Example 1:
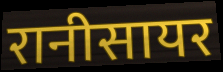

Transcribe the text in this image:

रानीसायर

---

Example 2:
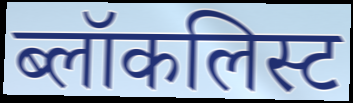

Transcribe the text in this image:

ब्लॉकलिस्ट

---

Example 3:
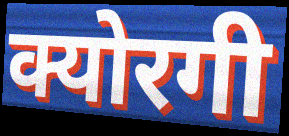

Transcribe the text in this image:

क्योरगी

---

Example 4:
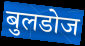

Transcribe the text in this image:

बुलडोज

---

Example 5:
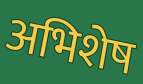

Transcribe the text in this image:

अभिशेष